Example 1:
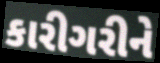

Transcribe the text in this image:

કારીગરીને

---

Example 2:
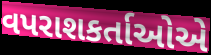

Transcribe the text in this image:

વપરાશકર્તાઓએ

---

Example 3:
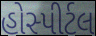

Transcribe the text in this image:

હોસ્પીર્ટલ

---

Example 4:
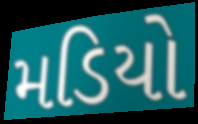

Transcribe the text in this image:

મડિયો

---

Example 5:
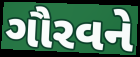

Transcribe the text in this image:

ગૌરવને